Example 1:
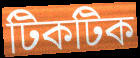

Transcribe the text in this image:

টিকটিক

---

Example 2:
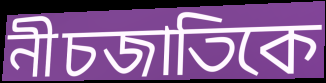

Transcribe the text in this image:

নীচজাতিকে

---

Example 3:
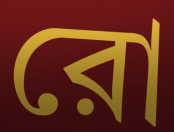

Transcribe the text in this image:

রো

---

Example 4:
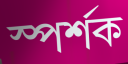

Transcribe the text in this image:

স্পর্শক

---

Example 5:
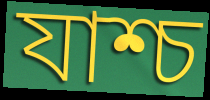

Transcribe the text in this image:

যাশ্চ